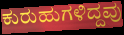
ಕುರುಹುಗಳಿದ್ದವು